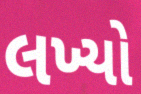
લખ્યો